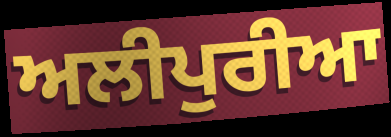
ਅਲੀਪੁਰੀਆ